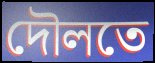
দৌলতে